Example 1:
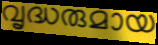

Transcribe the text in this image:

വൃദ്ധരുമായ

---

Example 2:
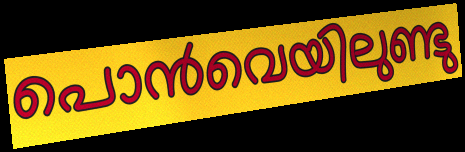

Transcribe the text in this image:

പൊൻവെയിലുണ്ടു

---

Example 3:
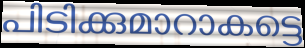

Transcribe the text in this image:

പിടിക്കുമാറാകട്ടെ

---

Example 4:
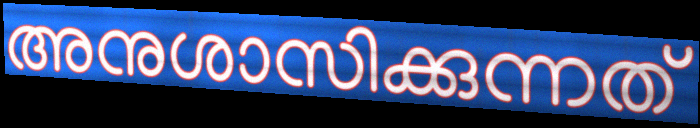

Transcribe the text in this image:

അനുശാസിക്കുന്നത്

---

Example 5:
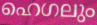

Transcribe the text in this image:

ഹെഗലും